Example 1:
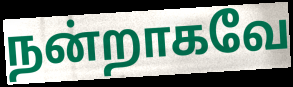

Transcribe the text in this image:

நன்றாகவே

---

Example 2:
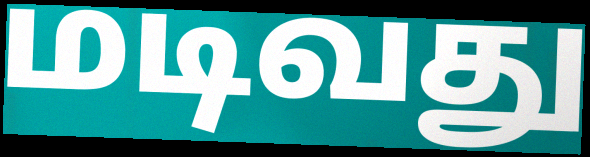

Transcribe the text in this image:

மடிவது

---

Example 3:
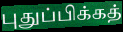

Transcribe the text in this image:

புதுப்பிக்கத்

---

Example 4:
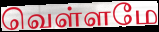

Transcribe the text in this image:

வெள்ளமே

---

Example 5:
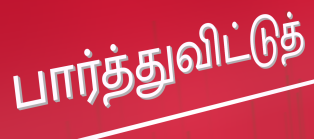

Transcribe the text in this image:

பார்த்துவிட்டுத்